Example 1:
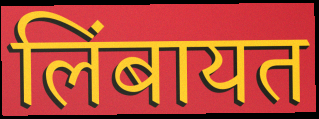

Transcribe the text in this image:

लिंबायत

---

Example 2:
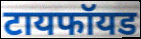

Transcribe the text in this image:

टायफॉयड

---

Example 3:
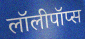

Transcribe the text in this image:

लॉलीपॉप्स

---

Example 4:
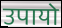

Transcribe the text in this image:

उपायो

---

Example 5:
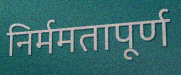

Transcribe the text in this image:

निर्ममतापूर्ण